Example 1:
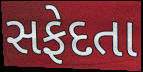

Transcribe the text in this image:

સફેદતા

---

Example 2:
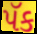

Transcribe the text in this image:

પૅક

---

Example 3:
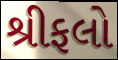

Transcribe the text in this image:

શ્રીફલો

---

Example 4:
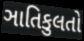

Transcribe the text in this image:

ઞાતિકુલતો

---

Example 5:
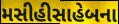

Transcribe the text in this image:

મસીહીસાહેબના